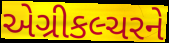
એગ્રીકલ્ચરને